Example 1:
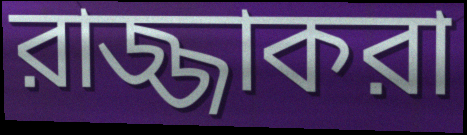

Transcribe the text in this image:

রাজ্জাকরা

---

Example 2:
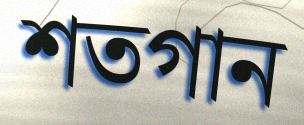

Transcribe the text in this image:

শতগান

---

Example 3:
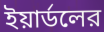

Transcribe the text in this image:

ইয়ার্ডলের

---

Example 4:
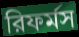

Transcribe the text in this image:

রিফর্মস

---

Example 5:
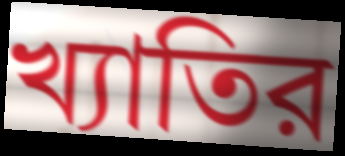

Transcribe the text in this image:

খ্যাতির